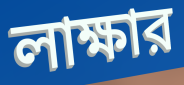
লাক্ষার